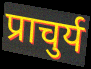
प्राचुर्य